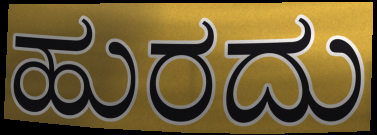
ಹುರದು